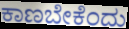
ಕಾಣಬೇಕೆಂದು